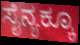
ಸೈನ್ಯಕ್ಕೂ